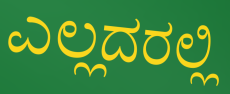
ಎಲ್ಲದರಲ್ಲಿ